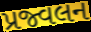
પ્રજ્વલન